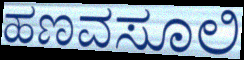
ಹಣವಸೂಲಿ